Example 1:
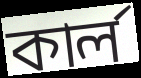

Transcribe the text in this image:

কাৰ্ল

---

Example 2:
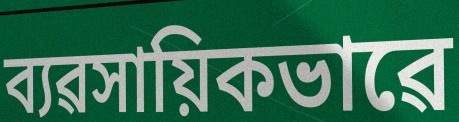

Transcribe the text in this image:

ব্যৱসায়িকভাৱে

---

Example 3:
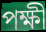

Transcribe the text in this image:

পক্ষী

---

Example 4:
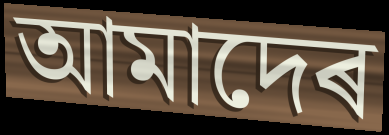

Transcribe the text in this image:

আমাদেৰ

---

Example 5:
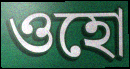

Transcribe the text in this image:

ওহো